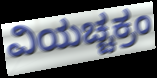
ವಿಯಚ್ಚಕ್ರಂ